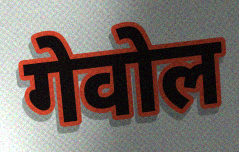
गेवोल